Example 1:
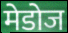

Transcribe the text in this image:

मेडोज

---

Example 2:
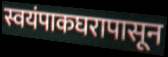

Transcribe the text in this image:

स्वयंपाकघरापासून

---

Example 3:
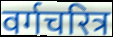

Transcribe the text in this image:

वर्गचरित्र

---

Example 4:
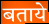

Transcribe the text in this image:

बताये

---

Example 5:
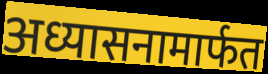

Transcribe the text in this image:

अध्यासनामार्फत